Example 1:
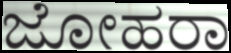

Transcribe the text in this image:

ಜೋಹರಾ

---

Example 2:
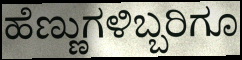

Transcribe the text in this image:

ಹೆಣ್ಣುಗಳಿಬ್ಬರಿಗೂ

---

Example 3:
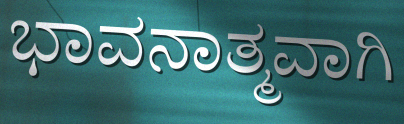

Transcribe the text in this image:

ಭಾವನಾತ್ಮವಾಗಿ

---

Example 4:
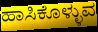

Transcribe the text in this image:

ಹಾಸಿಕೊಳ್ಳುವ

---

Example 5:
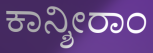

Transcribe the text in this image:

ಕಾನ್ಶೀರಾಂ